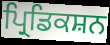
ਪ੍ਰਿਡਿਕਸ਼ਨ